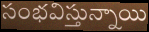
సంభవిస్తున్నాయి